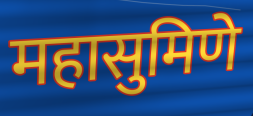
महासुमिणे